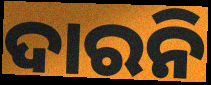
ଦାରନି